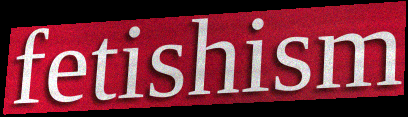
fetishism